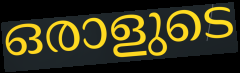
ഒരാളുടെ